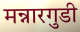
मन्नारगुडी